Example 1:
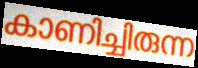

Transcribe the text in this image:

കാണിച്ചിരുന്ന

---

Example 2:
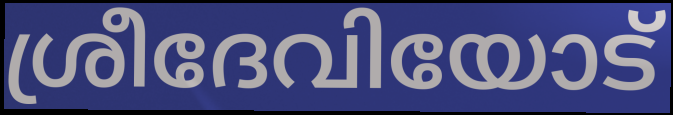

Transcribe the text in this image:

ശ്രീദേവിയോട്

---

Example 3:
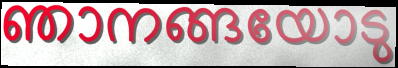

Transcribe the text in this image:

ഞാനങ്ങയോടു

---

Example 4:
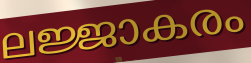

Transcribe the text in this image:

ലജ്ജാകരം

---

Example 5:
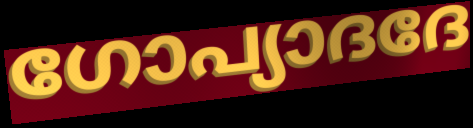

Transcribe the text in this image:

ഗോപ്യാദദേ